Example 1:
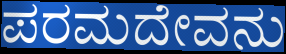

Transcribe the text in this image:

ಪರಮದೇವನು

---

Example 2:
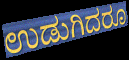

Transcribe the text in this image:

ಉಡುಗಿದರೂ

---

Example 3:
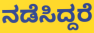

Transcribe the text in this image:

ನಡೆಸಿದ್ದರೆ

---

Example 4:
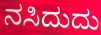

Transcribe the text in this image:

ನಸಿದುದು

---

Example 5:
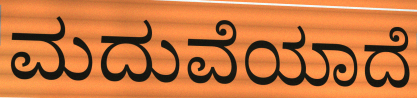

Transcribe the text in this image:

ಮದುವೆಯಾದೆ